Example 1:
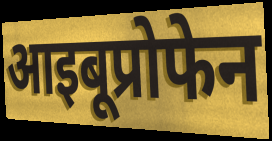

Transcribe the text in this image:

आइबूप्रोफेन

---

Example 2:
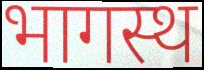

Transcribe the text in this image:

भागस्थ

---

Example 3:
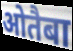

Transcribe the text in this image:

ओतैबा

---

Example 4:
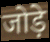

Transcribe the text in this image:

जोड़े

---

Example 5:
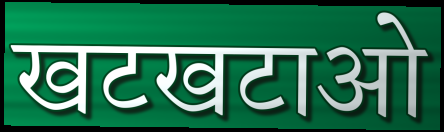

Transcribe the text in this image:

खटखटाओ